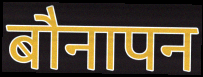
बौनापन